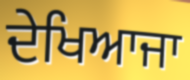
ਦੇਖਿਆਜਾ